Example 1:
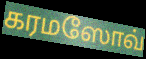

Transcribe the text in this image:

கரமஸோவ்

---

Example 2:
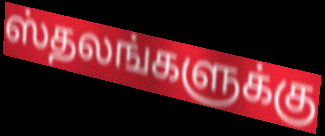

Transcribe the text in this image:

ஸ்தலங்களுக்கு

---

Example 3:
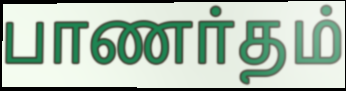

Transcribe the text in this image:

பாணர்தம்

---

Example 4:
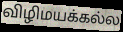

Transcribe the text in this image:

விழிமயக்கல்ல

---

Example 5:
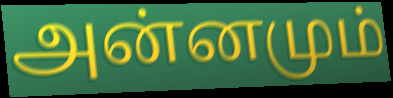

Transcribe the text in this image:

அன்னமும்